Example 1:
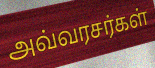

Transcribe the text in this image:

அவ்வரசர்கள்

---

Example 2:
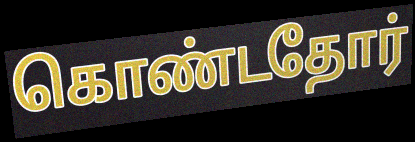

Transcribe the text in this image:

கொண்டதோர்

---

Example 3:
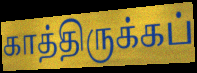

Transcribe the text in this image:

காத்திருக்கப்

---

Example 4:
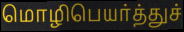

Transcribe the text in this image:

மொழிபெயர்த்துச்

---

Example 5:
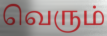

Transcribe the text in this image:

வெரும்